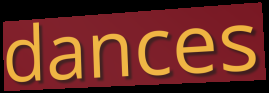
dances